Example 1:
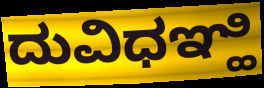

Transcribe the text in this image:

ದುವಿಧಞ್ಹಿ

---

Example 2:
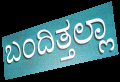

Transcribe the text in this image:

ಬಂದಿತ್ತಲ್ಲಾ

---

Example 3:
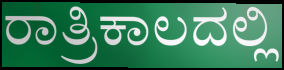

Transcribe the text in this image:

ರಾತ್ರಿಕಾಲದಲ್ಲಿ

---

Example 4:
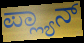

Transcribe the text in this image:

ಪ್ಲ್ಯಾನ್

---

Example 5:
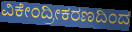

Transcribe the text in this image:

ವಿಕೇಂದ್ರೀಕರಣದಿಂದ